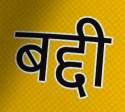
बद्दी